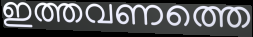
ഇത്തവണത്തെ